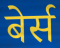
बेर्स